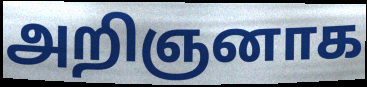
அறிஞனாக